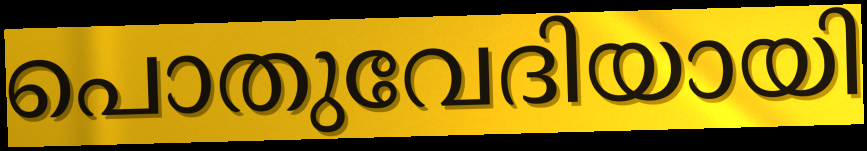
പൊതുവേദിയായി